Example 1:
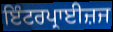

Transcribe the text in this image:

ਇੰਟਰਪ੍ਰਾਈਜ਼ਜ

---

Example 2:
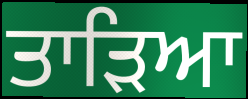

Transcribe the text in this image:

ਤਾੜਿਆ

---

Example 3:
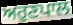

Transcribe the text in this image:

ਅਰੁਣਪਾਲ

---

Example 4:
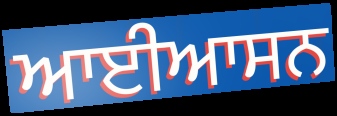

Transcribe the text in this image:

ਆਈਆਸਨ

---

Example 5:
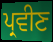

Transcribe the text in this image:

ਪ੍ਰਵੀਣ